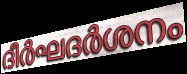
ദീർഘദർശനം